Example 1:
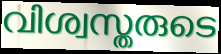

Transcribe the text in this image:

വിശ്വസ്തരുടെ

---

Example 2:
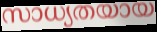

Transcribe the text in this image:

സാധ്യതയായ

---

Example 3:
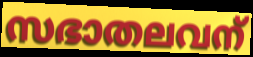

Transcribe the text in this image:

സഭാതലവന്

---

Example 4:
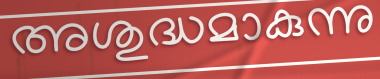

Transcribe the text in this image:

അശുദ്ധമാകുന്നു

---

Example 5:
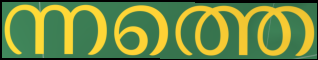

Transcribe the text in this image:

ന്നത്തെ